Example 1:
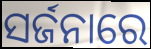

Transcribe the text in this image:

ସର୍ଜନାରେ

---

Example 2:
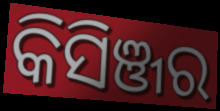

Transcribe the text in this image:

କିସିଞ୍ଜର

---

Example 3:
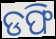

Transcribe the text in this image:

ଡଫି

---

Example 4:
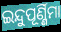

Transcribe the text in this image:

ଇନ୍ଦୁପୂର୍ଣ୍ଣିମା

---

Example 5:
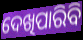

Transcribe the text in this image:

ଦେଖିପାରିବି